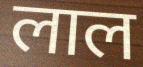
लाल